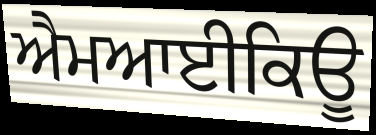
ਐਮਆਈਕਿਊ